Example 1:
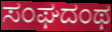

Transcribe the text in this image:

ಸಂಘದಂಥ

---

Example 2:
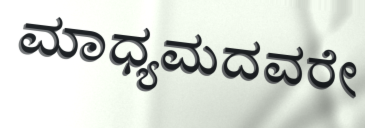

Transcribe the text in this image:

ಮಾಧ್ಯಮದವರೇ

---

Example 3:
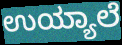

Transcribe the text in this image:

ಉಯ್ಯಾಲೆ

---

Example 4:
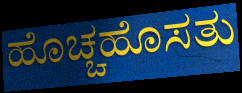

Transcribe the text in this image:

ಹೊಚ್ಚಹೊಸತು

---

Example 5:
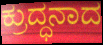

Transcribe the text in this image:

ಕ್ರುದ್ಧನಾದ